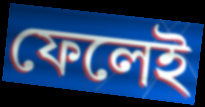
ফেলেই